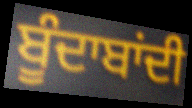
ਬੂੰਦਾਬਾਂਦੀ